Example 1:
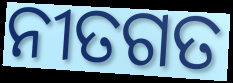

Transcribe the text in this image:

ନୀତଗତ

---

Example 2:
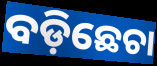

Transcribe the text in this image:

ବଡ଼ିଛେଚା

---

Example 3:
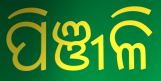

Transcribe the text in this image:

ପିଞ୍ଜଳି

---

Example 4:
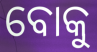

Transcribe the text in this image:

ବୋକୁ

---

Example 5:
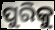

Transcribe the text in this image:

ପୁରିକୁ